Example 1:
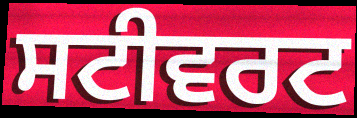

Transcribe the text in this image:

ਸਟੀਵਰਟ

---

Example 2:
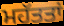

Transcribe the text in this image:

ਮਹੱਤਤਾਂ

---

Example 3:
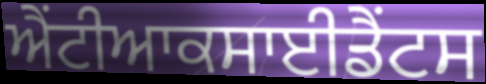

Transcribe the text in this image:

ਐਂਟੀਆਕਸਾਈਡੈਂਟਸ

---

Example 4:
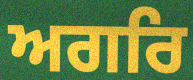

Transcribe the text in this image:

ਅਗਰਿ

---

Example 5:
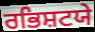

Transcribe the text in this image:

ਰਭਿਸ਼ਟਯੇ